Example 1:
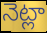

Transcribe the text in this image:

నెట్లా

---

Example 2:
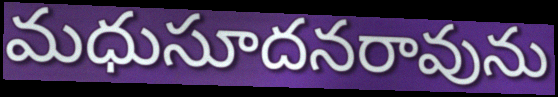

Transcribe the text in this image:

మధుసూదనరావును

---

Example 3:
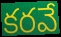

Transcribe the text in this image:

కరవే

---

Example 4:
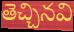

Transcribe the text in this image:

తెచ్చినవి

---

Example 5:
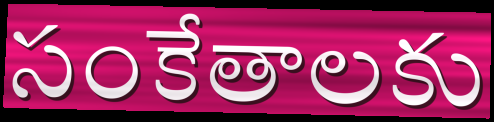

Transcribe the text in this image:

సంకేతాలకు